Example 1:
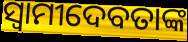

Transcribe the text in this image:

ସ୍ୱାମୀଦେବତାଙ୍କ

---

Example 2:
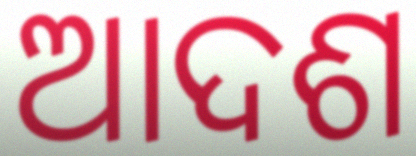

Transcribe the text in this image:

ଆଦଶ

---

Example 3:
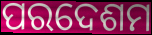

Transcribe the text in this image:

ପରଦେଶମ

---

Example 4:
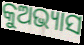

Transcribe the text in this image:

କୁଅଭ୍ୟାସ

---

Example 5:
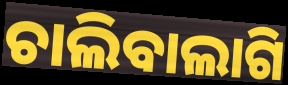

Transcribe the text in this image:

ଚାଲିବାଲାଗି